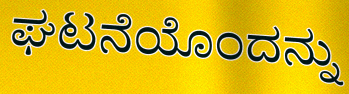
ಘಟನೆಯೊಂದನ್ನು